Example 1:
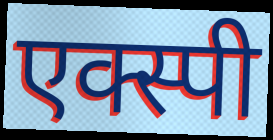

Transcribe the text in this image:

एक्स्पी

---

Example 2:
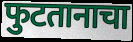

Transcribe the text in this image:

फुटतानाचा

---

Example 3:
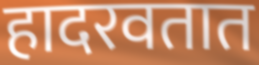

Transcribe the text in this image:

हादरवतात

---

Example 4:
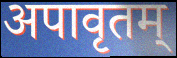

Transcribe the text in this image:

अपावृतम्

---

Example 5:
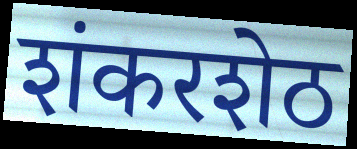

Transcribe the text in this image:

शंकरशेठ